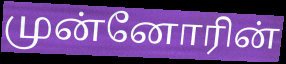
முன்னோரின்